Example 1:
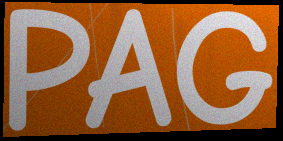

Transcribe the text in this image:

PAG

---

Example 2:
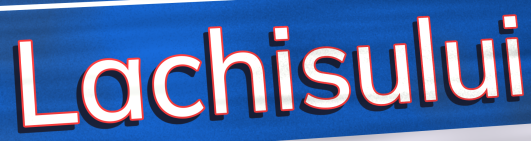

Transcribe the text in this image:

Lachisului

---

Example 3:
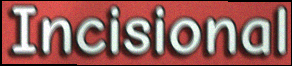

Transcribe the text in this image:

Incisional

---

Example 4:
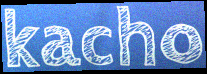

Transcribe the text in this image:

kacho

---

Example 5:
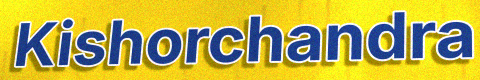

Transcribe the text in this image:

Kishorchandra